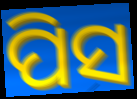
ପିସ